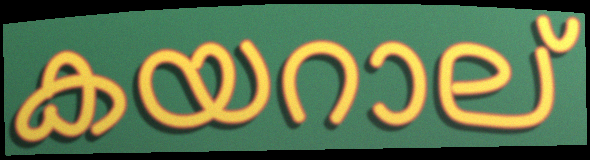
കയറാല്